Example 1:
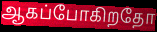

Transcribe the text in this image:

ஆகப்போகிறதோ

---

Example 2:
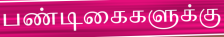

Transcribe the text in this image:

பண்டிகைகளுக்கு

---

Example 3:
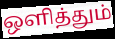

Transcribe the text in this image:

ஒளித்தும்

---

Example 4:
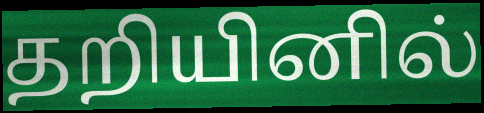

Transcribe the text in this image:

தறியினில்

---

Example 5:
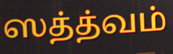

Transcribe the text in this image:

ஸத்த்வம்